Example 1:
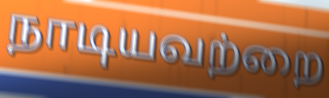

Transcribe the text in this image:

நாடியவற்றை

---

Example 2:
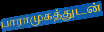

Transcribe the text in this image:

பாராமுகத்துடன்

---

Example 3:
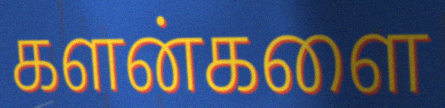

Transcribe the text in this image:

களன்களை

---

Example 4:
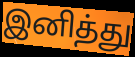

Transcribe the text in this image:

இனித்து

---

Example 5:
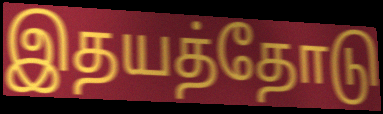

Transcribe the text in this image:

இதயத்தோடு